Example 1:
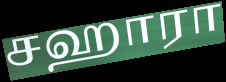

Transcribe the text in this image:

சஹாரா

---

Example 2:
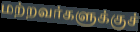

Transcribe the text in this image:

மற்றவர்களுக்குச்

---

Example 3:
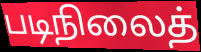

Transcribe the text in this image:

படிநிலைத்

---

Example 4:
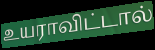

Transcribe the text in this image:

உயராவிட்டால்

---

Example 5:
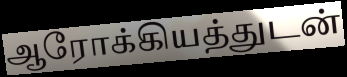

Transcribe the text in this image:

ஆரோக்கியத்துடன்